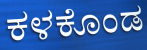
ಕಳಕೊಂಡ